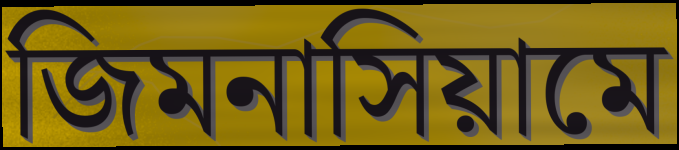
জিমনাসিয়ামে